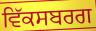
ਵਿੱਕਸਬਰਗ